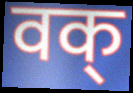
वक्